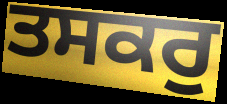
ਤਸਕਰੁ